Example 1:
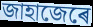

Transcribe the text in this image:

জাহাজেৰে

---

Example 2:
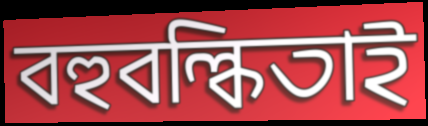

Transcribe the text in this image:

বহুবল্কিতাই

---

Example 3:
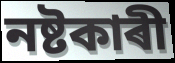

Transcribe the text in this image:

নষ্টকাৰী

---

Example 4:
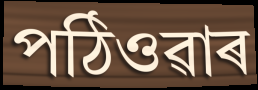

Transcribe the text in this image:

পঠিওৱাৰ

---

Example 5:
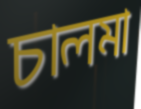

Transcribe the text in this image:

চালমা